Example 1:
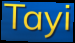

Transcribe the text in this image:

Tayi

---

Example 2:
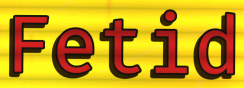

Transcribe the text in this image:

Fetid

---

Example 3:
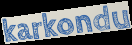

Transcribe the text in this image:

karkondu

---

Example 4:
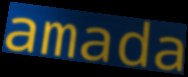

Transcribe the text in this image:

amada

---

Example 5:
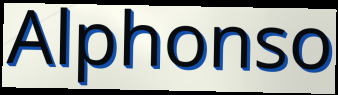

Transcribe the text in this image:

Alphonso